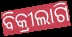
ବିକ୍ରୀଲାଗି